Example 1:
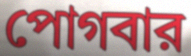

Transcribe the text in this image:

পোগবার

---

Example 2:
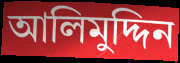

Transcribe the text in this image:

আলিমুদ্দিন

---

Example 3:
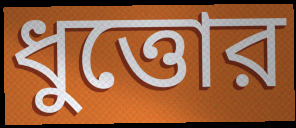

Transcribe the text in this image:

ধুত্তোর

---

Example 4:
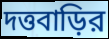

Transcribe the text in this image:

দত্তবাড়ির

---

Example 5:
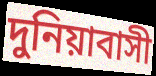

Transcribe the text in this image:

দুনিয়াবাসী